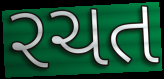
રચત